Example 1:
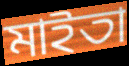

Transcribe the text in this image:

মাইতা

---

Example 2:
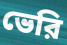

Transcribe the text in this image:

ভেরি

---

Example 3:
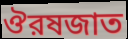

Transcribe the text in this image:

ঔরষজাত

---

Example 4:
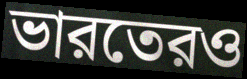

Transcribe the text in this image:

ভারতেরও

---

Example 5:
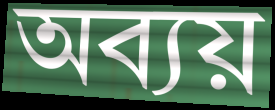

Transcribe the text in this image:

অব্যয়